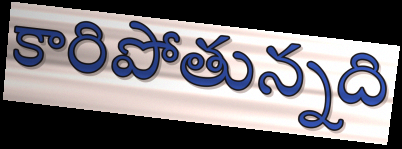
కారిపోతున్నది